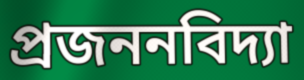
প্রজননবিদ্যা